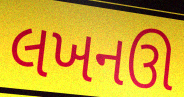
લખનઊ